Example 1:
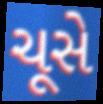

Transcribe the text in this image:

ચૂસે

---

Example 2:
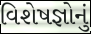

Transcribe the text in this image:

વિશેષજ્ઞોનું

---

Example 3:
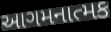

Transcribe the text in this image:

આગમનાત્મક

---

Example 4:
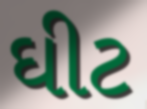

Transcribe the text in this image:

ઘીટ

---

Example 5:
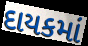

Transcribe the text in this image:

દાયકમાં